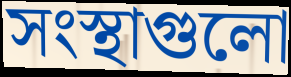
সংস্থাগুলো